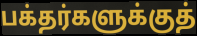
பக்தர்களுக்குத்